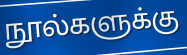
நூல்களுக்கு